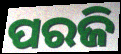
ପରଜି